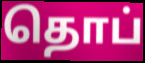
தொப்